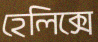
হেলিক্সে